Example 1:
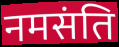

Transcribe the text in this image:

नमसंति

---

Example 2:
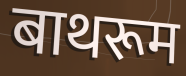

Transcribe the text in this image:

बाथरूम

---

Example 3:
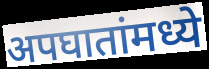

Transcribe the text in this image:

अपघातांमध्ये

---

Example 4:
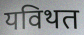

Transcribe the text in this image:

यविथत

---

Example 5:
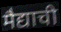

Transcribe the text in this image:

मैद्याची